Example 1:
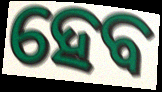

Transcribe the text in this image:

ହେବ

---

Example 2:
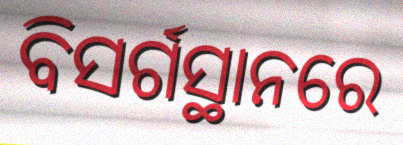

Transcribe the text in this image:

ବିସର୍ଗସ୍ଥାନରେ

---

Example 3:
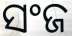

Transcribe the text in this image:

ସଂଜ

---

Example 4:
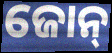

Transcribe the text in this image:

ଜୋନ୍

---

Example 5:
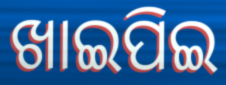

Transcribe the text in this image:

ଖାଇପିଇ